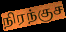
நிரந்குச